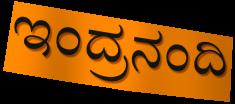
ಇಂದ್ರನಂದಿ